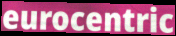
eurocentric